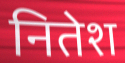
नितेश